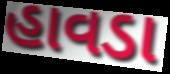
હાવડા